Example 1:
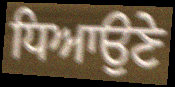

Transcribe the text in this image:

ਧਿਆਉਣੇ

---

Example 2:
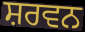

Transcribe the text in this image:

ਸ਼ਰਵਨ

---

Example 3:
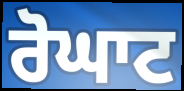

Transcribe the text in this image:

ਰੋਘਾਟ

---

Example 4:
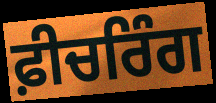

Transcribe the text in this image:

ਫ਼ੀਚਰਿੰਗ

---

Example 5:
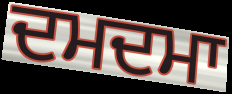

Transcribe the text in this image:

ਦਮਦਮਾ